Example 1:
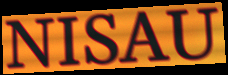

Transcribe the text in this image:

NISAU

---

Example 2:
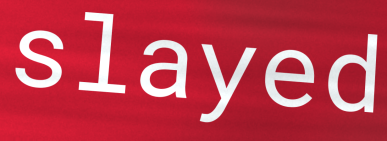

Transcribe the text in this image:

slayed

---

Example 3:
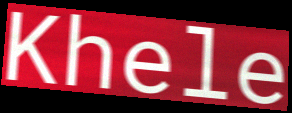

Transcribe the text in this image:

Khele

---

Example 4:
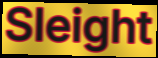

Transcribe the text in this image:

Sleight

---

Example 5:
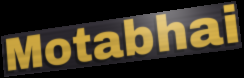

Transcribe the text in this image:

Motabhai